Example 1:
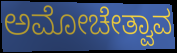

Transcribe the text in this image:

ಅಮೋಚೇತ್ವಾವ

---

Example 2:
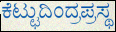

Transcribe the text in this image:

ಕೆಟ್ಟುದಿಂದ್ರಪ್ರಸ್ಥ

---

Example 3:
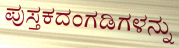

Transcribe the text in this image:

ಪುಸ್ತಕದಂಗಡಿಗಳನ್ನು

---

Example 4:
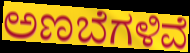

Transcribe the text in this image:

ಅಣಬೆಗಳಿವೆ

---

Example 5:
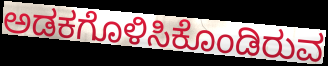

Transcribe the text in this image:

ಅಡಕಗೊಳಿಸಿಕೊಂಡಿರುವ